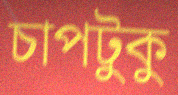
চাপটুকু